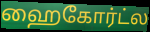
ஹைகோர்ட்ல